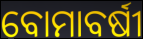
ବୋମାବର୍ଷୀ